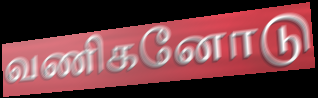
வணிகனோடு